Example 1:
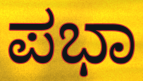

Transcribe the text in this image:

ಪಭಾ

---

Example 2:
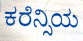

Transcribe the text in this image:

ಕರೆನ್ಸಿಯ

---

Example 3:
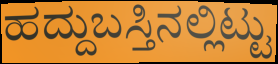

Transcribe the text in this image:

ಹದ್ದುಬಸ್ತಿನಲ್ಲಿಟ್ಟು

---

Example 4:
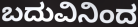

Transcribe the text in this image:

ಬದುವಿನಿಂದ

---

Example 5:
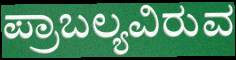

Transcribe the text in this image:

ಪ್ರಾಬಲ್ಯವಿರುವ